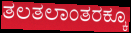
ತಲತಲಾಂತರಕ್ಕೂ